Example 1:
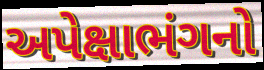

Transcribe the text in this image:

અપેક્ષાભંગનો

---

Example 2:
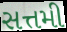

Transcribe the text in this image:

સત્તમી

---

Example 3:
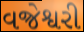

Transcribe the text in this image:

વજ્રેશ્વરી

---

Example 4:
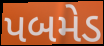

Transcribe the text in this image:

પબમેડ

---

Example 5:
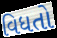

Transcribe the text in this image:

વિધતો